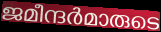
ജമീന്ദർമാരുടെ